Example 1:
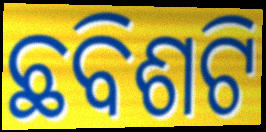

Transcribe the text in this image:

ଛବିଶଟି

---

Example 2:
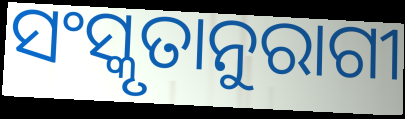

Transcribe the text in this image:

ସଂସ୍କୃତାନୁରାଗୀ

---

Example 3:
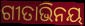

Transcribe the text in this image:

ଗୀତାଭିନୟ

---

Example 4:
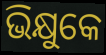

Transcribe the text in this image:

ଭିକ୍ଷୁକେ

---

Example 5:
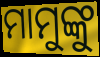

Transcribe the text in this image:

ମାମୁଙ୍କୁ